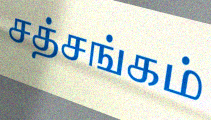
சத்சங்கம்